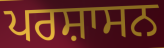
ਪਰਸ਼ਾਸਨ